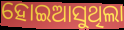
ହୋଇଆସୁଥିଲା